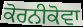
ਕੋਰਨੀਕੋਵਾ